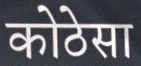
कोठेसा